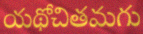
యథోచితమగు